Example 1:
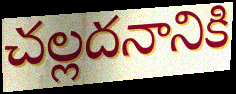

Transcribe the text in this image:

చల్లదనానికి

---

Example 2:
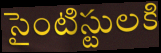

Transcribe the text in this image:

సైంటిస్టులకి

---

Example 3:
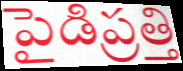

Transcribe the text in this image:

పైడిప్రత్తి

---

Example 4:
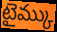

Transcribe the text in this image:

టైమ్కు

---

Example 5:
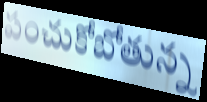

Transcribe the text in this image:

పంచుకోబోతున్న